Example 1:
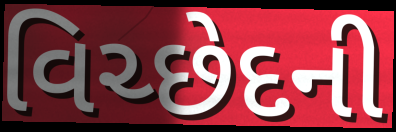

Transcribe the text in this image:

વિચ્છેદની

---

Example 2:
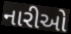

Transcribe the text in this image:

નારીઓ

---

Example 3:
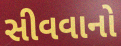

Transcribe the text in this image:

સીવવાનો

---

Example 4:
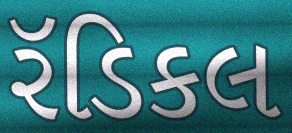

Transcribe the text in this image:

રૅડિકલ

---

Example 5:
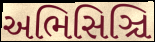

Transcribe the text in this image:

અભિસિઞ્ચિ